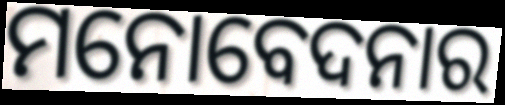
ମନୋବେଦନାର